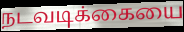
நடவடிக்கையை